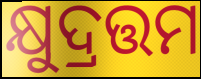
କ୍ଷୁଦ୍ରତ୍ତମ